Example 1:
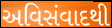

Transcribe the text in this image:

અવિસંવાદથી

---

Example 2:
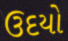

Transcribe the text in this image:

ઉદયો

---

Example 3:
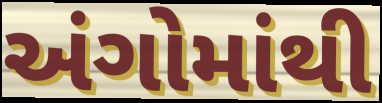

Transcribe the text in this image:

અંગોમાંથી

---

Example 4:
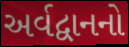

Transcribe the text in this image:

અર્વદ્વાનનો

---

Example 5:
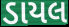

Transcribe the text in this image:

ડાયલ